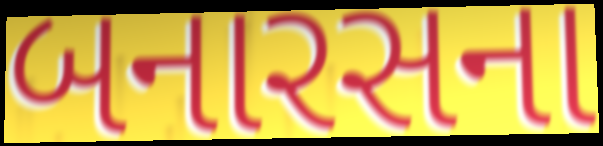
બનારસના